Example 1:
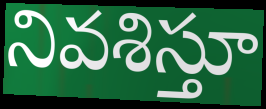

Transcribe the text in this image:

నివశిస్తూ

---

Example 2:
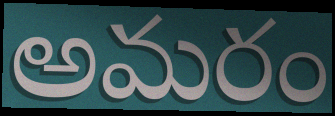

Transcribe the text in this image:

అమరం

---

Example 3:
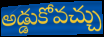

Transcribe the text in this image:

అడ్డుకోవచ్చు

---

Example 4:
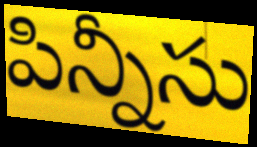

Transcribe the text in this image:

పిన్నీసు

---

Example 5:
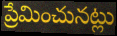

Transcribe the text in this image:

ప్రేమించునట్లు